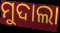
ମୁଦାଲା